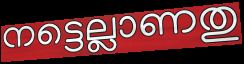
നട്ടെല്ലാണതു